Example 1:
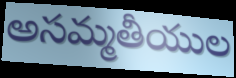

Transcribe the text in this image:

అసమ్మతీయుల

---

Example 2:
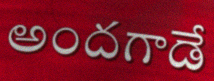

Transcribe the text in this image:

అందగాడే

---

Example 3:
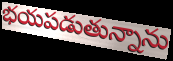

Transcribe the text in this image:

భయపడుతున్నాను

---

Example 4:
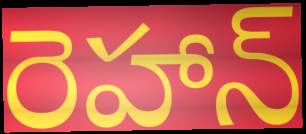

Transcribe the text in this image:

రెహాన్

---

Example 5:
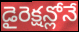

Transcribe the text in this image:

డైరెక్షన్లోనే